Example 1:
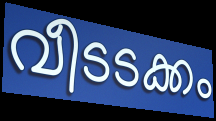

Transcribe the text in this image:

വീടടക്കം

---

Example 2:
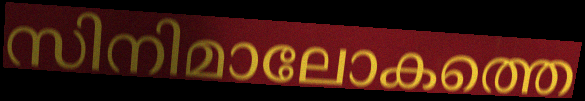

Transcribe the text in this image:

സിനിമാലോകത്തെ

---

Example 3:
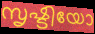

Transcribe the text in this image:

സൃഷ്ടിയോ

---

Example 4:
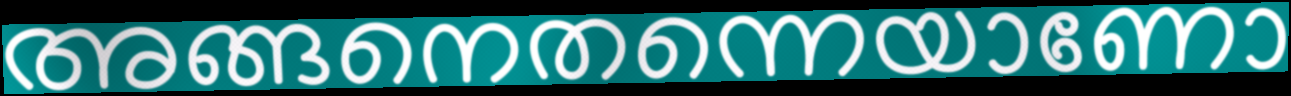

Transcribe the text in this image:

അങ്ങനെതന്നെയാണോ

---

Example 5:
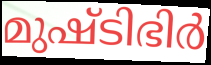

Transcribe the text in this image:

മുഷ്ടിഭിർ